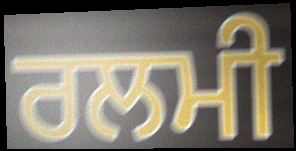
ਰਲਮੀ